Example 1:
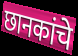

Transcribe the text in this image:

छानकांचे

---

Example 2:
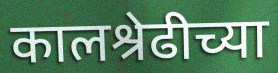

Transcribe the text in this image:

कालश्रेढीच्या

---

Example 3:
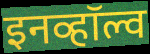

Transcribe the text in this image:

इनव्हॉल्व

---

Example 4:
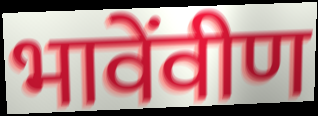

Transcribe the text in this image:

भावेंवीण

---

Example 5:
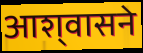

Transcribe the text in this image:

आश्वासने